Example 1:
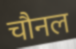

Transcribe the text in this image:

चौनल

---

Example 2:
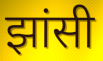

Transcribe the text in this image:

झांसी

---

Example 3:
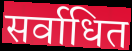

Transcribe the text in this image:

सर्वाधित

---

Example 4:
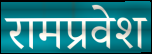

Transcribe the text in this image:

रामप्रवेश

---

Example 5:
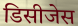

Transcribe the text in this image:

डिसीजेस